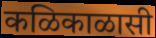
कळिकाळासी